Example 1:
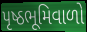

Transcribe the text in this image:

પૃષ્ઠભૂમિવાળો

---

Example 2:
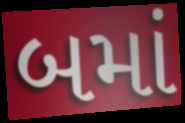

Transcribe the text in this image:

બમાં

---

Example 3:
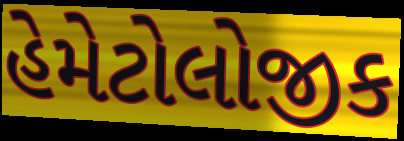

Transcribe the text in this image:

હેમેટોલોજીક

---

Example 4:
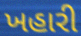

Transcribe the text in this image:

ખહારી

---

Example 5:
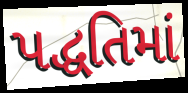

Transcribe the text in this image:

પદ્ધતિમાં